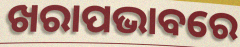
ଖରାପଭାବରେ